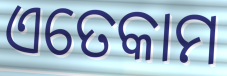
ଏତେକାମ